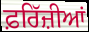
ਫ਼ਰਿੱਜ਼ੀਆਂ